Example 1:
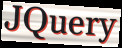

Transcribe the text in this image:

JQuery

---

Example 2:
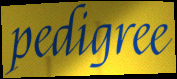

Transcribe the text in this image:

pedigree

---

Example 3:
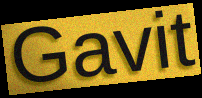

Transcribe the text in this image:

Gavit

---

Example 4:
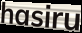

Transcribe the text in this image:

hasiru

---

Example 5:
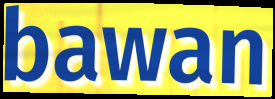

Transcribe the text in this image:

bawan